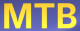
MTB